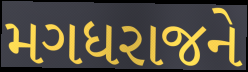
મગધરાજને